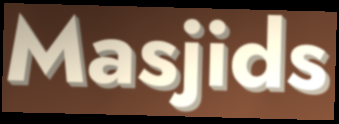
Masjids